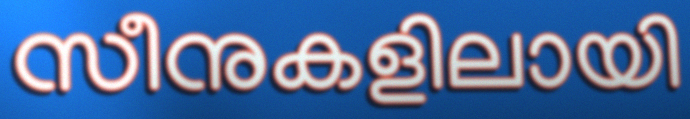
സീനുകളിലായി